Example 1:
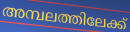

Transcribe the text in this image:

അമ്പലത്തിലേക്ക്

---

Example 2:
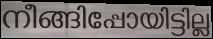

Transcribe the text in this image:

നീങ്ങിപ്പോയിട്ടില്ല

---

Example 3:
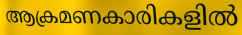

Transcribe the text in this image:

ആക്രമണകാരികളിൽ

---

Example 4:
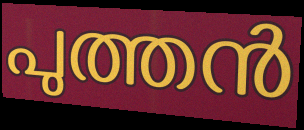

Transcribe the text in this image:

പുത്തൻ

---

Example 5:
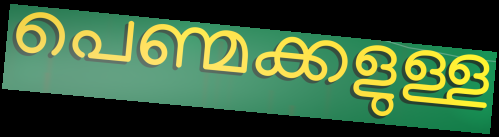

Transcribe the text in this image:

പെണ്മക്കളുള്ള